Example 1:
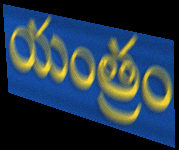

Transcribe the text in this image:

యంత్రం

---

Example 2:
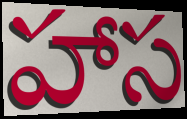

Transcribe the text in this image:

హాస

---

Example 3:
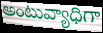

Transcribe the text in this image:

అంటువ్యాధిగా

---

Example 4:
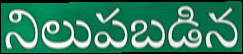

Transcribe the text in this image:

నిలుపబడిన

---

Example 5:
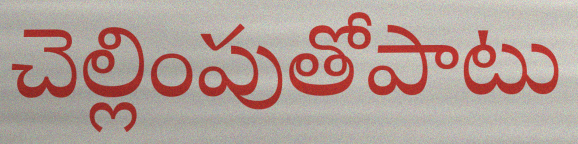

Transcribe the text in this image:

చెల్లింపుతోపాటు